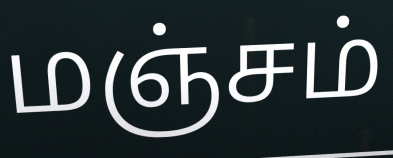
மஞ்சம்